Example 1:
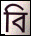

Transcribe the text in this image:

বি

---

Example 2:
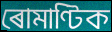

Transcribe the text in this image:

ৰোমাণ্টিক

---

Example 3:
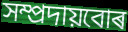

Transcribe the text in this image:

সম্প্ৰদায়বোৰ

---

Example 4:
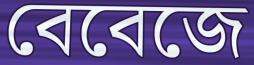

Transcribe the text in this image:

বেবেজে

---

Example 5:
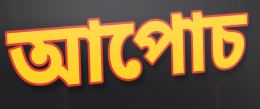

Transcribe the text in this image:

আপোচ